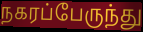
நகரப்பேருந்து